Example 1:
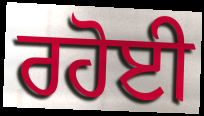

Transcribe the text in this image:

ਰਹੋਈ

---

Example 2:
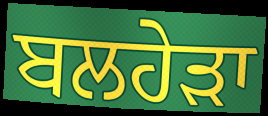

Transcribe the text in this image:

ਬਲਹੇੜਾ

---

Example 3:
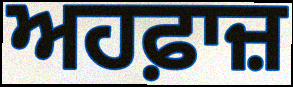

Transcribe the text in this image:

ਅਹਫ਼ਾਜ਼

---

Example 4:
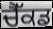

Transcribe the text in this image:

ਚੈੱਕਡ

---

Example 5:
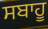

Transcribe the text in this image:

ਸਬਾਹੂ